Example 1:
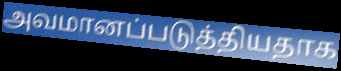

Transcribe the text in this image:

அவமானப்படுத்தியதாக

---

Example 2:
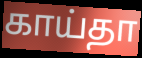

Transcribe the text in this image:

காய்தா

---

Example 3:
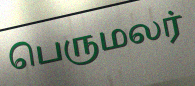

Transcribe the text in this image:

பெருமலர்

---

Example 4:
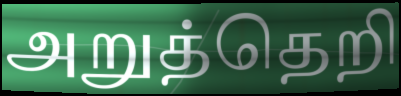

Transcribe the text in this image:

அறுத்தெறி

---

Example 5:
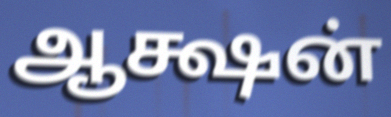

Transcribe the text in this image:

ஆக்ஷன்